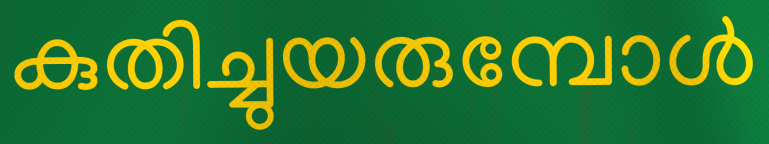
കുതിച്ചുയരുമ്പോൾ